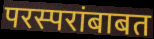
परस्परांबाबत